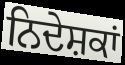
ਨਿਦੇਸ਼ਕਾਂ